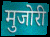
मुजोरी